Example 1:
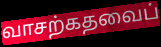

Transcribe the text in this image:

வாசற்கதவைப்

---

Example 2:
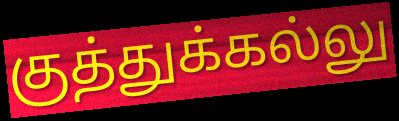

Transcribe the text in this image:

குத்துக்கல்லு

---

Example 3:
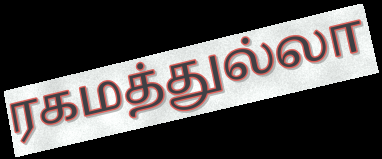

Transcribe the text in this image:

ரகமத்துல்லா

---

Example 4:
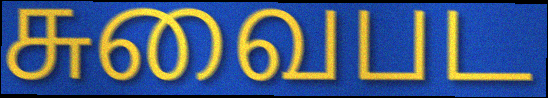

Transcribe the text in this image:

சுவைபட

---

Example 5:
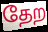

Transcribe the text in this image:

தேற